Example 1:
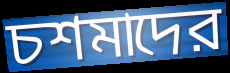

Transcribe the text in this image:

চশমাদের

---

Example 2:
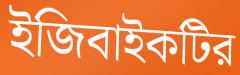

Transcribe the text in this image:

ইজিবাইকটির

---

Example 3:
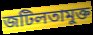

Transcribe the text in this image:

জটিলতামুক্ত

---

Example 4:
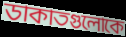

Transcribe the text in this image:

ডাকাতগুলোকে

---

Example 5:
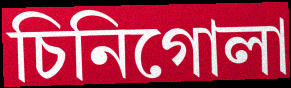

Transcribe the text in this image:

চিনিগোলা